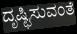
ದೃಷ್ಟಿಸುವಂತೆ